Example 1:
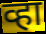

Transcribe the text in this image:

व्हा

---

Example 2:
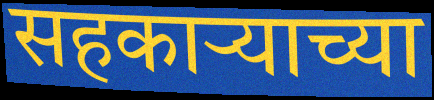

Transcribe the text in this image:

सहकार्‍याच्या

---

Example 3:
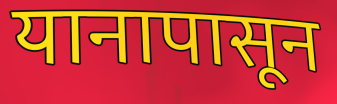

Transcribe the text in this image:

यानापासून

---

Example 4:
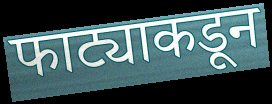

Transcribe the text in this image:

फाट्याकडून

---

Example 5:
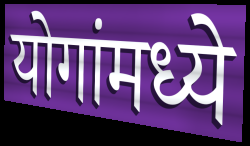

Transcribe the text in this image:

योगांमध्ये